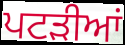
ਪਟਡ਼ੀਆਂ